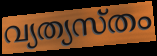
വ്യത്യസ്തം